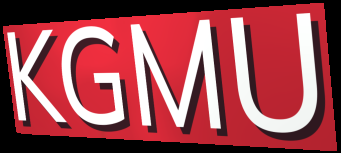
KGMU